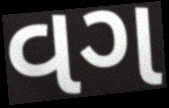
વગ